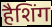
हैशिंग